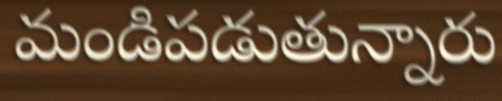
మండిపడుతున్నారు